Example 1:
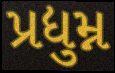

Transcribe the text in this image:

પ્રદ્યુમ્ન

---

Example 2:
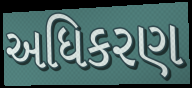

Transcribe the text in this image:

અધિકરણ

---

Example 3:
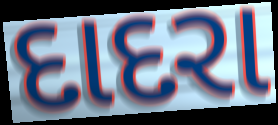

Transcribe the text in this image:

દાદરા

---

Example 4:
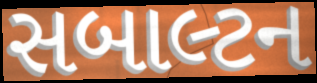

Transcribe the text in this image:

સબાલ્ટન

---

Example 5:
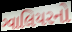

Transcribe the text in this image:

ગ્વાલિયરનો